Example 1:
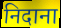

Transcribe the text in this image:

निदाना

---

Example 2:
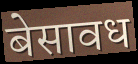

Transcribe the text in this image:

बेसावध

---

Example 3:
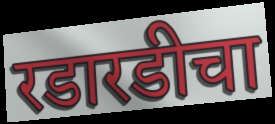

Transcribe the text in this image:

रडारडीचा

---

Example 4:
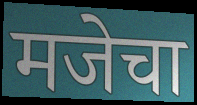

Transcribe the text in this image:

मजेचा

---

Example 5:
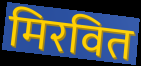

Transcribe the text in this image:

मिरवित